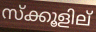
സ്ക്കൂളില്